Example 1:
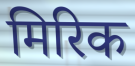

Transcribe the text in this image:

मिरिक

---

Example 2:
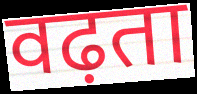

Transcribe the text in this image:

वढ़ता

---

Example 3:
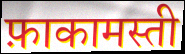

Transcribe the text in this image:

फ़ाकामस्ती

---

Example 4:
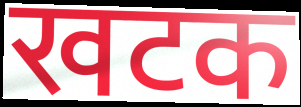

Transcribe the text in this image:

खटक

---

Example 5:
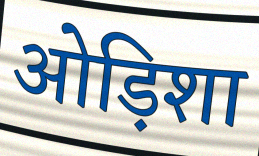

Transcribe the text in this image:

ओड़िशा